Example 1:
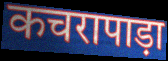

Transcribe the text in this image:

कचरापाड़ा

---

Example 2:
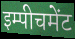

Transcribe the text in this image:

इम्पीचमेंट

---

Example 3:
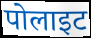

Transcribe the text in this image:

पोलाइट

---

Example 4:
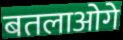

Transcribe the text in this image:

बतलाओगे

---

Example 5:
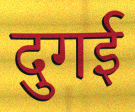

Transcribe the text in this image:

दुगई